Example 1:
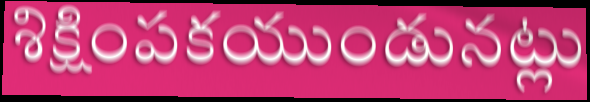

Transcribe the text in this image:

శిక్షింపకయుండునట్లు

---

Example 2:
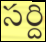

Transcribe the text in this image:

సర్ది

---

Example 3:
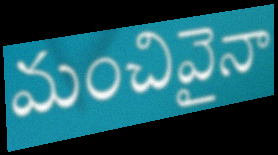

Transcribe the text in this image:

మంచివైనా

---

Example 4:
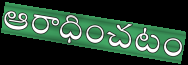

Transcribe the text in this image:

ఆరాధించటం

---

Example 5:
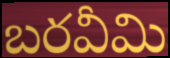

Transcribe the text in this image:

బరవీమి